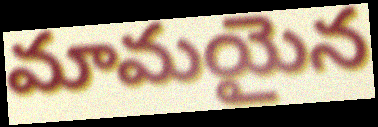
మామయైన